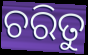
ଚରିତୁ